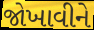
જોખાવીને